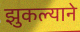
झुकल्याने